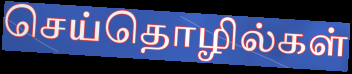
செய்தொழில்கள்